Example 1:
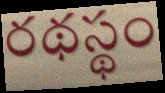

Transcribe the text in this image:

రథస్థం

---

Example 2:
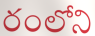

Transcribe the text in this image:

రంలోని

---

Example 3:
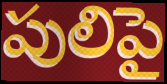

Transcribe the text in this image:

పులిపై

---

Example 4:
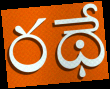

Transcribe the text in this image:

రథే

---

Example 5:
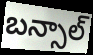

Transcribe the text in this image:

బన్సాల్